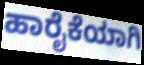
ಹಾರೈಕೆಯಾಗಿ